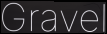
Gravel